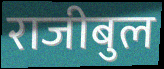
राजीबुल